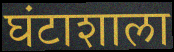
घंटाशाला